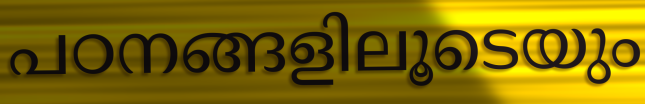
പഠനങ്ങളിലൂടെയും